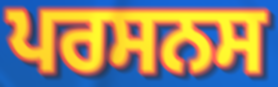
ਪਰਸਨਸ